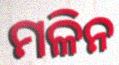
ମଳିନ